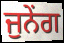
ਜੁਨੇਂਗ